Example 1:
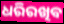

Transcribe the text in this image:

ଧରିରଖିବ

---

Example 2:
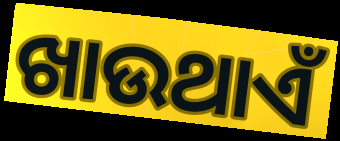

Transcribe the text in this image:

ଖାଉଥାଏଁ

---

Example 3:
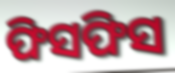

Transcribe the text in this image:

ଫିସଫିସ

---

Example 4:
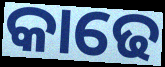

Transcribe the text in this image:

କାଢେ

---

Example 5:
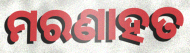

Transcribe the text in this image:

ମରଣାହତ